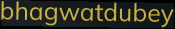
bhagwatdubey